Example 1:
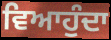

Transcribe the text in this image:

ਵਿਆਹੁੰਦਾ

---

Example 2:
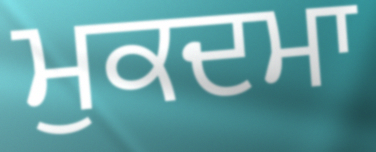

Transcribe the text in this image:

ਮੁਕਦਮਾ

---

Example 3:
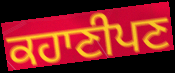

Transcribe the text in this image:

ਕਹਾਣੀਪਣ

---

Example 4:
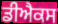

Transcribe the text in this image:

ਡੀਐਕਸ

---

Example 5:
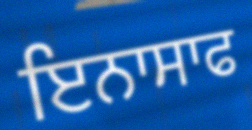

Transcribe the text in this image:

ਇਨਾਸਾਫ